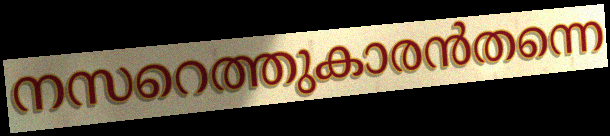
നസറെത്തുകാരൻതന്നെ